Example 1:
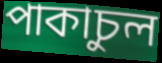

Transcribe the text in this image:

পাকাচুল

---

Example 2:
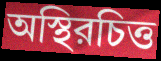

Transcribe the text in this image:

অস্থিরচিত্ত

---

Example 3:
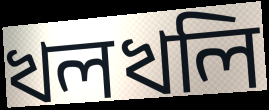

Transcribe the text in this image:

খলখলি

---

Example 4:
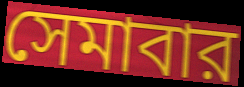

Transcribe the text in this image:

সেমাবার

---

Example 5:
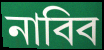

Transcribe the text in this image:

নাবিব